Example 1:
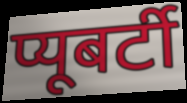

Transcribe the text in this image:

प्‍यूबर्टी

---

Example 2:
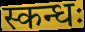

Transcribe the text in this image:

स्कन्धः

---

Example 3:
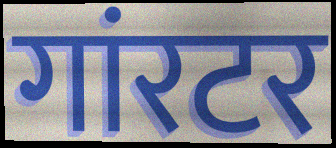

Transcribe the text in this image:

गांरटर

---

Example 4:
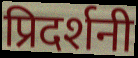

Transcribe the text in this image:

प्रिदर्शनी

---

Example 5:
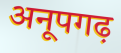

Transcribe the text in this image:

अनूपगढ़